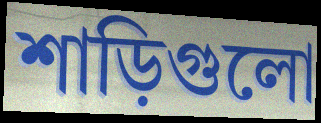
শাড়িগুলো